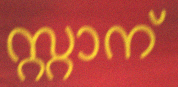
സ്റ്റാന്